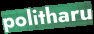
politharu